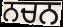
ਨਚਨ